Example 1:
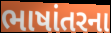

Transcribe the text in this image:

ભાષાંતરના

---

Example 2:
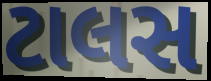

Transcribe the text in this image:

ટાલસ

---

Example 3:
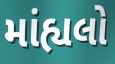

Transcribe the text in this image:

માંહ્યલો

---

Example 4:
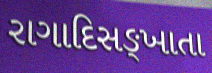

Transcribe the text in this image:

રાગાદિસઙ્ખાતા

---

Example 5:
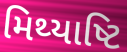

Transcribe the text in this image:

મિથ્યાષ્ટિ